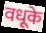
वधूके